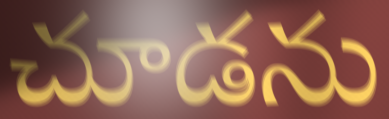
చూడను